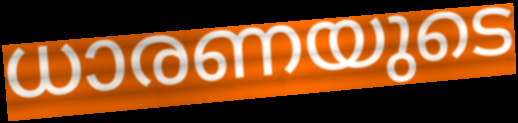
ധാരണയുടെ